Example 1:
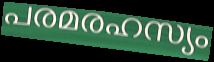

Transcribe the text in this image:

പരമരഹസ്യം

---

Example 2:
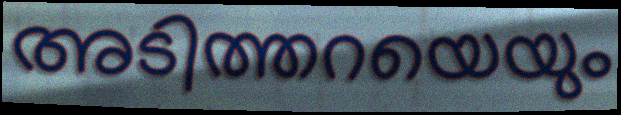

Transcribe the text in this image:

അടിത്തറയെയും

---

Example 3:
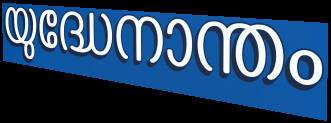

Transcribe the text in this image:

യുദ്ധേനാന്തം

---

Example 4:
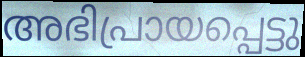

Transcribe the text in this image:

അഭിപ്രായപ്പെട്ടു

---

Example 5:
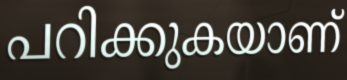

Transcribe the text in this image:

പറിക്കുകയാണ്